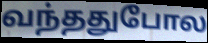
வந்ததுபோல